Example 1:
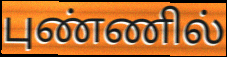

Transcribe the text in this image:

புண்ணில்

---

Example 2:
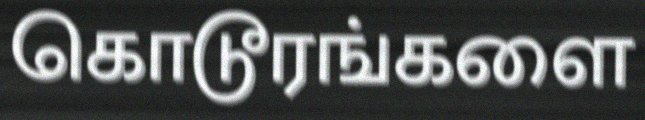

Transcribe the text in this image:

கொடூரங்களை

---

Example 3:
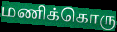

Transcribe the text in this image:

மணிக்கொரு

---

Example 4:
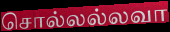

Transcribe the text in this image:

சொல்லல்லவா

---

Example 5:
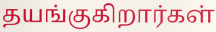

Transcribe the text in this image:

தயங்குகிறார்கள்